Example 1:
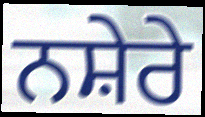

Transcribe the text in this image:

ਨਸ਼ੇਰੇ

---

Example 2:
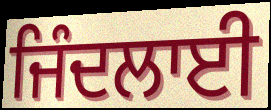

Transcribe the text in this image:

ਜਿੰਦਲਾਈ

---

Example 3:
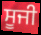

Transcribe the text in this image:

ਸੂਜੀ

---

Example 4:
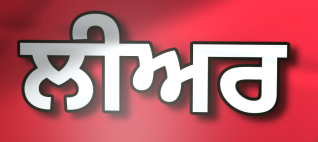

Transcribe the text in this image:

ਲੀਅਰ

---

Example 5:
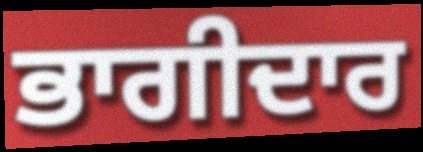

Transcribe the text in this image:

ਭਾਗੀਦਾਰ